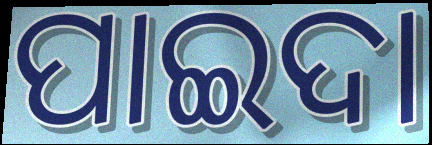
ପାଇଦା